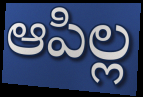
ఆపిల్ల